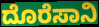
ದೊರೆಸಾನಿ